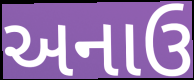
અનાઉ